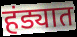
हंड्यात